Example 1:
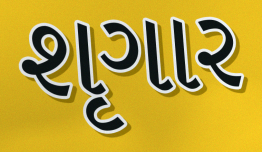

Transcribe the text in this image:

શૃગાર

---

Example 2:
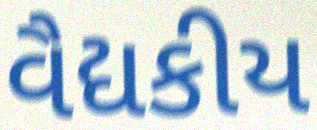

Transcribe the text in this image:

વૈદ્યકીય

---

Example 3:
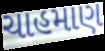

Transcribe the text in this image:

ચાહમાણ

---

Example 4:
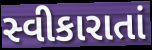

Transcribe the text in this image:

સ્વીકારાતાં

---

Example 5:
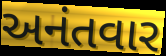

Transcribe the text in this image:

અનંતવાર